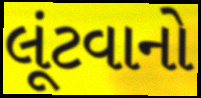
લૂંટવાનો